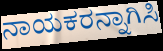
ನಾಯಕರನ್ನಾಗಿಸಿ